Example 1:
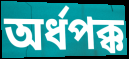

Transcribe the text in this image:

অর্ধপক্ক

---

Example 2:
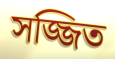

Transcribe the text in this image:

সজ্জিত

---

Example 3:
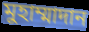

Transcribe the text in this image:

মুহাম্মাদান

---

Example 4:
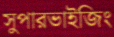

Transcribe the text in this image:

সুপারভাইজিং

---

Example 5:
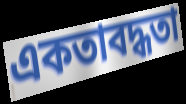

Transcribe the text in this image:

একতাবদ্ধতা